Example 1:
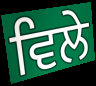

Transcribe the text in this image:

ਵਿਲੇ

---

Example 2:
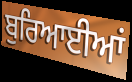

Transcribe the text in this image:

ਬੁਰਿਆਈਆਂ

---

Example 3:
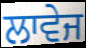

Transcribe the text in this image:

ਲਾਵੇਜ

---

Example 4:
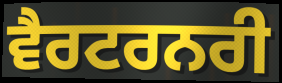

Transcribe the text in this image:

ਵੈਰਟਰਨਰੀ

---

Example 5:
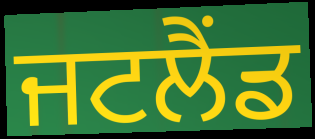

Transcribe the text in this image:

ਜਟਲੈਂਡ